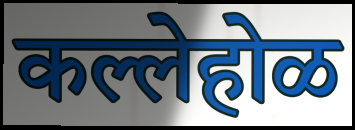
कल्लेहोळ